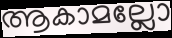
ആകാമല്ലോ